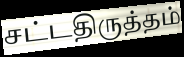
சட்டதிருத்தம்